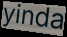
yinda